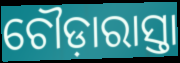
ଚୌଡ଼ାରାସ୍ତା